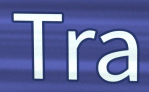
Tra